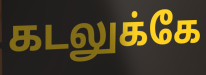
கடலுக்கே